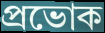
প্রভোক